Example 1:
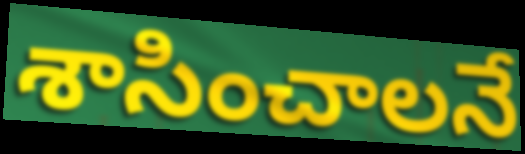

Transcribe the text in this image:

శాసించాలనే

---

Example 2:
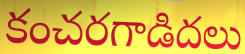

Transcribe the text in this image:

కంచరగాడిదలు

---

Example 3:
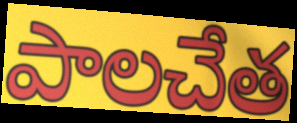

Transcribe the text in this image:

పాలచేత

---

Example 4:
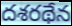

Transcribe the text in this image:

దశరథేన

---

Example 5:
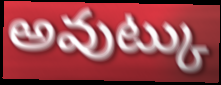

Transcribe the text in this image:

అవుట్కు